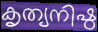
കൃത്യനിഷ്ഠ